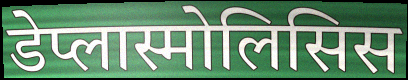
डेप्लास्मोलिसिस